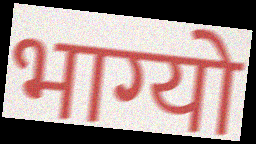
भाग्यो